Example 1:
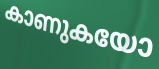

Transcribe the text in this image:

കാണുകയോ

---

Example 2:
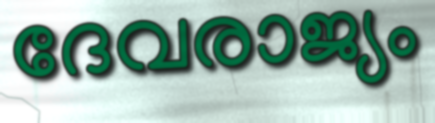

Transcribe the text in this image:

ദേവരാജ്യം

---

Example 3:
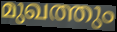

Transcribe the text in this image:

മുഖത്തും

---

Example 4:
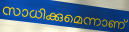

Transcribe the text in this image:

സാധിക്കുമെന്നാണ്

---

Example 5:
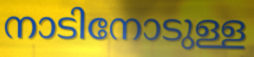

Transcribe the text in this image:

നാടിനോടുള്ള